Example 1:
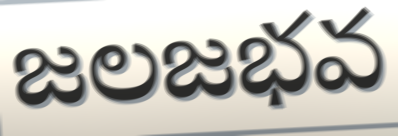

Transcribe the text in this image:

జలజభవ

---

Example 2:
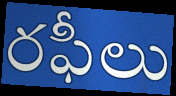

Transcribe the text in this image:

రఫీలు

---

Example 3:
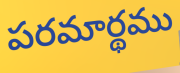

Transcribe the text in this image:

పరమార్థము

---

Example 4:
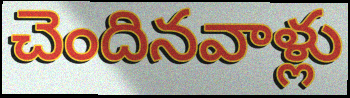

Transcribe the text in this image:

చెందినవాళ్లు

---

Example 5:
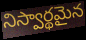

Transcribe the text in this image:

నిస్వార్థమైన